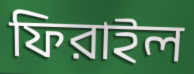
ফিরাইল